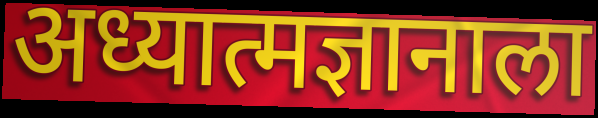
अध्यात्मज्ञानाला